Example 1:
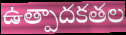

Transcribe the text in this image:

ఉత్పాదకతల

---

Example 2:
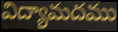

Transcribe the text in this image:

విద్యామదము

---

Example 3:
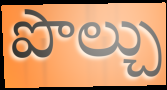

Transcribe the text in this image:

పొల్చు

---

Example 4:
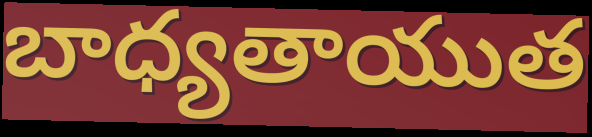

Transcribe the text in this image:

బాధ్యతాయుత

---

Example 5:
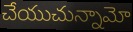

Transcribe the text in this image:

చేయుచున్నామో